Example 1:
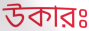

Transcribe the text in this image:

উকারঃ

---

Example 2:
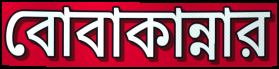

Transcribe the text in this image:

বোবাকান্নার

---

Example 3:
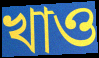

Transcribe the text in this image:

খাও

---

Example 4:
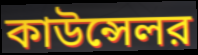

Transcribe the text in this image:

কাউন্সেলর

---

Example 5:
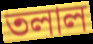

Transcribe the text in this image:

তলাল